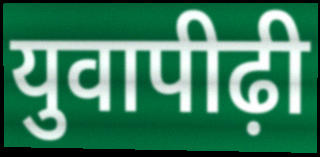
युवापीढ़ी